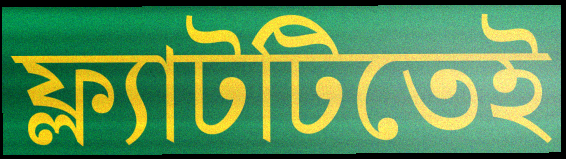
ফ্ল্যাটটিতেই